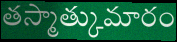
తస్మాత్కుమారం